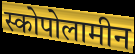
स्कोपोलामीन